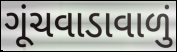
ગૂંચવાડાવાળું